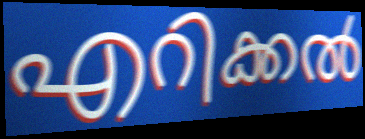
എറിക്കൽ